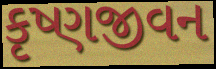
કૃષ્ણજીવન